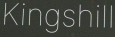
Kingshill